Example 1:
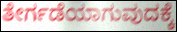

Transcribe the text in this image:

ತೇರ್ಗಡೆಯಾಗುವುದಕ್ಕೆ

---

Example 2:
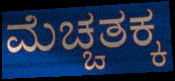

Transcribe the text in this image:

ಮೆಚ್ಚತಕ್ಕ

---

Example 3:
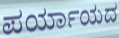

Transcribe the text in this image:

ಪರ್ಯಾಯದ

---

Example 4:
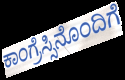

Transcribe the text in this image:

ಕಾಂಗ್ರೆಸ್ಸಿನೊಂದಿಗೆ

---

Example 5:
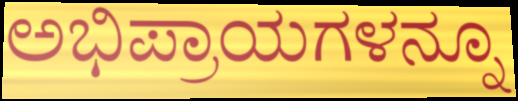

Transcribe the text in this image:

ಅಭಿಪ್ರಾಯಗಳನ್ನೂ